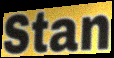
Stan